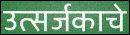
उत्सर्जकाचे